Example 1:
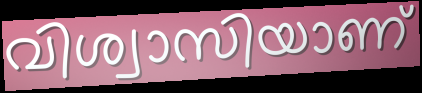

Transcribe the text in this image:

വിശ്വാസിയാണ്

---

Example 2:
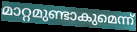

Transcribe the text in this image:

മാറ്റമുണ്ടാകുമെന്ന്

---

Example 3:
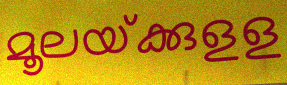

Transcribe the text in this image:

മൂലയ്‌ക്കുളള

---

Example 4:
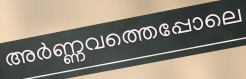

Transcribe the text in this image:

അർണ്ണവത്തെപ്പോലെ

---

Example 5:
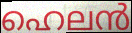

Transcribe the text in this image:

ഹെലൻ